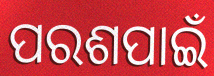
ପରଶପାଇଁ